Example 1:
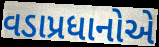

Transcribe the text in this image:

વડાપ્રધાનોએ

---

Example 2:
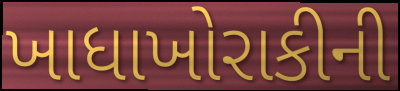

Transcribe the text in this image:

ખાધાખોરાકીની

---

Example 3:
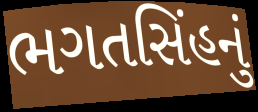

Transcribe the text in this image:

ભગતસિંહનું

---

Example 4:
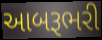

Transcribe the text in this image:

આબરૂભરી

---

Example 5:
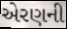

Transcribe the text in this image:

એરણની